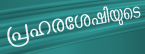
പ്രഹരശേഷിയുടെ